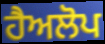
ਹੈਅਲੋਪ